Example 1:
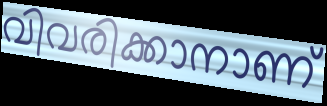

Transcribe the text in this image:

വിവരിക്കാനാണ്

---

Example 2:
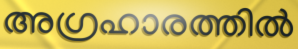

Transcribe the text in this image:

അഗ്രഹാരത്തിൽ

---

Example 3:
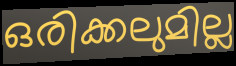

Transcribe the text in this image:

ഒരിക്കലുമില്ല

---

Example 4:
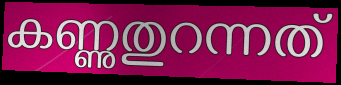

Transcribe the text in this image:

കണ്ണുതുറന്നത്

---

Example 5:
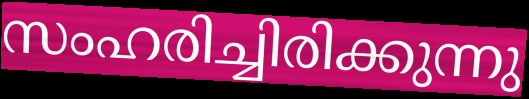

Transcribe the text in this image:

സംഹരിച്ചിരിക്കുന്നു